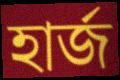
হার্জ